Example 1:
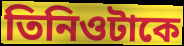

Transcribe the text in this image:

তিনিওটাকে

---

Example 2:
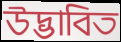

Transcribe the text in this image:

উদ্ভাবিত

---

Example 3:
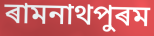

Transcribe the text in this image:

ৰামনাথপুৰম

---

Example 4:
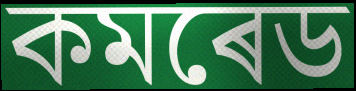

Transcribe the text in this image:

কমৰেড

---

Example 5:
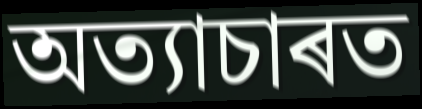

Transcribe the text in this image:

অত্যাচাৰত